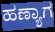
ಹಣ್ಯಾಗ